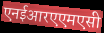
एनईआरएएमएसी